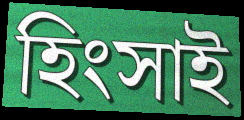
হিংসাই